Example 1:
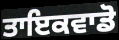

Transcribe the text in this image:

ਤਾਇਕਵਾਡੋ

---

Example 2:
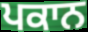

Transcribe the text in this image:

ਪਕਾਨ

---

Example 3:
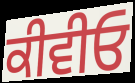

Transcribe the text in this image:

ਕੀਵੀਓ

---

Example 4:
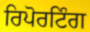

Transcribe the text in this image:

ਰਿਪੋਰਟਿੰਗ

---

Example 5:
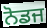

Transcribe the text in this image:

ਨੋਡਜ